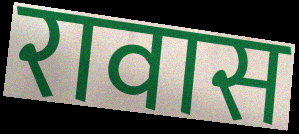
रावास